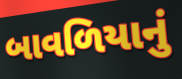
બાવળિયાનું